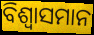
ବିଶ୍ଵାସମାନ